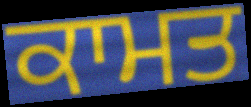
ਕਾਮਤ